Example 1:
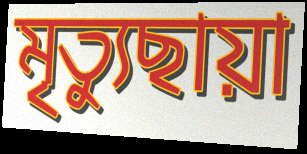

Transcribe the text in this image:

মৃত্যুছায়া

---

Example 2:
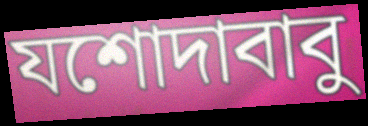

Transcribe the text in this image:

যশোদাবাবু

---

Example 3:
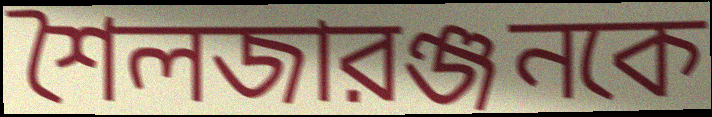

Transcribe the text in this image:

শৈলজারঞ্জনকে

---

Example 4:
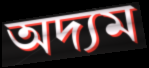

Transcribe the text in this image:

অদ্যম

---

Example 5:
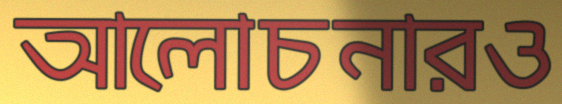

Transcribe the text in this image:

আলোচনারও